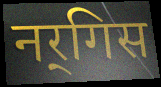
नर्गिस